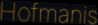
Hofmanis